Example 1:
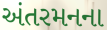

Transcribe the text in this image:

અંતરમનના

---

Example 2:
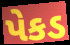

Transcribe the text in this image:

પેકડ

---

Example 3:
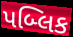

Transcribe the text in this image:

પબ્લિક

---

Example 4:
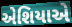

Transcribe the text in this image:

એશિયાએ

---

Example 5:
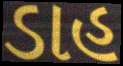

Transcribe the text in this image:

ડાહ